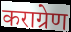
कराग्रेण